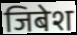
जिबेश